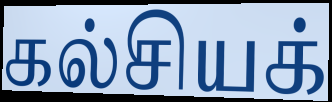
கல்சியக்